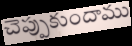
చెప్పుకుందాము